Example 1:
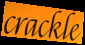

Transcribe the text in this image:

crackle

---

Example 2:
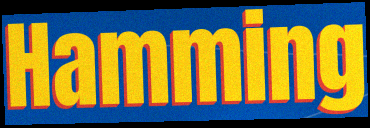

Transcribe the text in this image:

Hamming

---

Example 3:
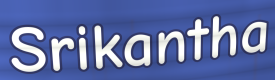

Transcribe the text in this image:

Srikantha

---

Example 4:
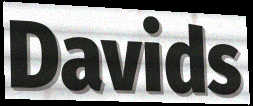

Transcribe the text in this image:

Davids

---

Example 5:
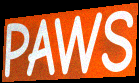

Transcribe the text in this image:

PAWS